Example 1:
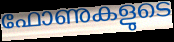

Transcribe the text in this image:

ഫോണുകളുടെ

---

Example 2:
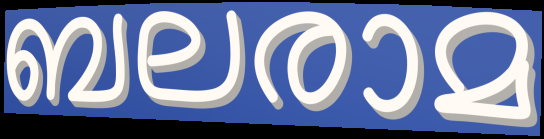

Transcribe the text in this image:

ബലരാമ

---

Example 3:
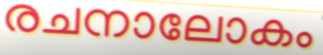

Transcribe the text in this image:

രചനാലോകം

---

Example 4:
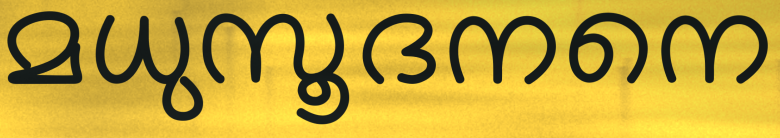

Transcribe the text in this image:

മധുസൂദനനെ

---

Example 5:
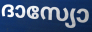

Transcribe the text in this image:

ദാസ്യോ